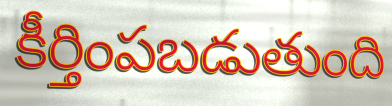
కీర్తింపబడుతుంది